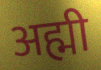
अह्मी